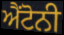
ਐਂਟੋਨੀ